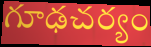
గూఢచర్యం